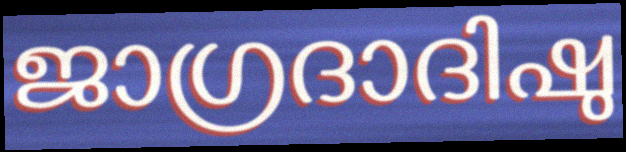
ജാഗ്രദാദിഷു